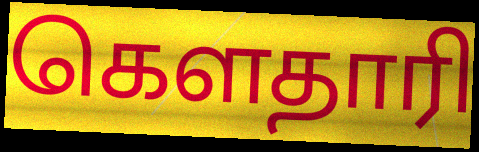
கௌதாரி